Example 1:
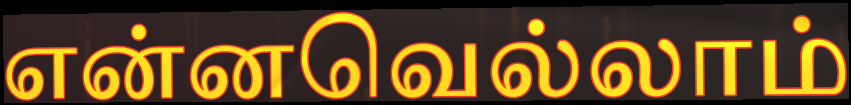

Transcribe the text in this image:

என்னவெல்லாம்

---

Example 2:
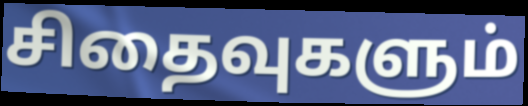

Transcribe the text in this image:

சிதைவுகளும்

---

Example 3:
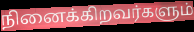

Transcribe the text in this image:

நினைக்கிறவர்களும்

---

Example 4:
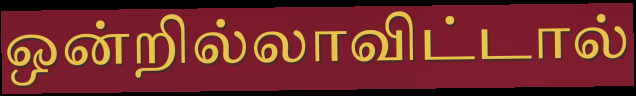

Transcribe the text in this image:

ஒன்றில்லாவிட்டால்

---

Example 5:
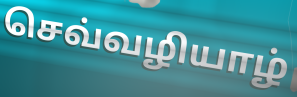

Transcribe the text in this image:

செவ்வழியாழ்